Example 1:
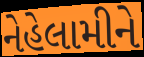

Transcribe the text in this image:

નેહેલામીને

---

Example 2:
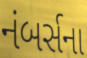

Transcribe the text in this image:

નંબર્સના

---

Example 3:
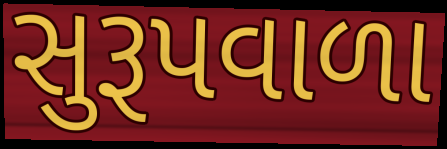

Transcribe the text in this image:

સુરૂપવાળા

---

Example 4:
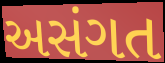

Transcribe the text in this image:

અસંગત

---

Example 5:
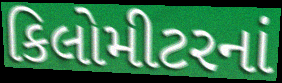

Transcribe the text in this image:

કિલોમીટરનાં